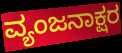
ವ್ಯಂಜನಾಕ್ಷರ